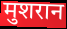
मुशरान